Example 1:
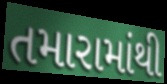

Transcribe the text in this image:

તમારામાંથી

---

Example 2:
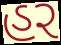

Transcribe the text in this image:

હર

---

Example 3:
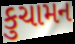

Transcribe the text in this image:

કુચામન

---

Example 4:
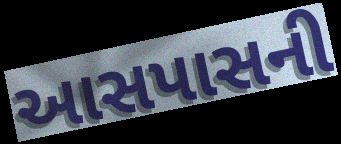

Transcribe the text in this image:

આસપાસની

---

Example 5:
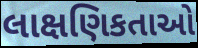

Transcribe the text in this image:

લાક્ષણિકતાઓ